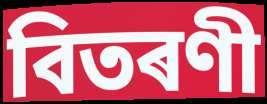
বিতৰণী